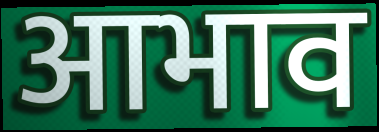
आभाव